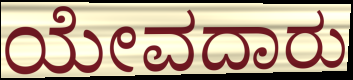
ಯೇವದಾರು